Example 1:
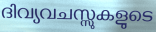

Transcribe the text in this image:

ദിവ്യവചസ്സുകളുടെ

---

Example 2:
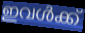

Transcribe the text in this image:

ഇവൾക്ക്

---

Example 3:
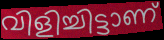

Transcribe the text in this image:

വിളിച്ചിട്ടാണ്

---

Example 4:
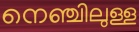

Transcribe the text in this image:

നെഞ്ചിലുള്ള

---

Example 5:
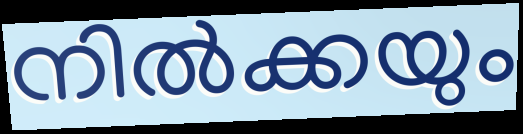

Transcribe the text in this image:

നിൽക്കയും